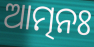
ଆତ୍ମନଃ